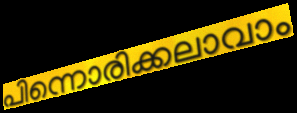
പിന്നൊരിക്കലാവാം